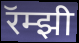
रॅम्झी